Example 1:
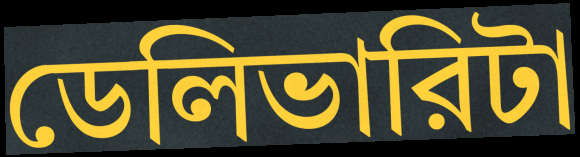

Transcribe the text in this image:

ডেলিভারিটা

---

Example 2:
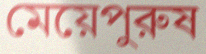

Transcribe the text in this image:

মেয়েপুরুষ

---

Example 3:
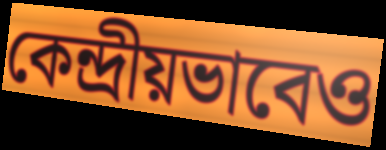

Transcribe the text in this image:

কেন্দ্রীয়ভাবেও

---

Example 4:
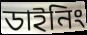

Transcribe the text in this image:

ডাইনিং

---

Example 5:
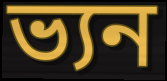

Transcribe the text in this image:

ভ্যন